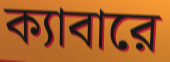
ক্যাবারে